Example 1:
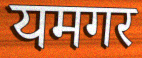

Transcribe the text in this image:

यमगर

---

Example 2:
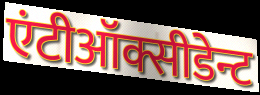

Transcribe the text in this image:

एंटीऑक्सीडेन्ट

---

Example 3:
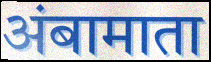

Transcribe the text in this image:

अंबामाता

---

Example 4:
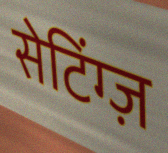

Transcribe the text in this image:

सेटिंग्ज़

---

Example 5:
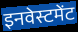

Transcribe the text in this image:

इनवेस्‍टमेंट